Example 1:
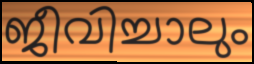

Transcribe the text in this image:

ജീവിച്ചാലും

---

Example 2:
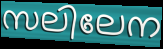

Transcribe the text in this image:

സലിലേന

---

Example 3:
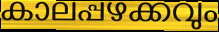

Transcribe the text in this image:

കാലപ്പഴക്കവും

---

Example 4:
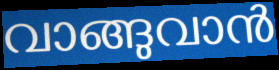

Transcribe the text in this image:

വാങ്ങുവാൻ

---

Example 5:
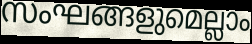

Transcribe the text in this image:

സംഘങ്ങളുമെല്ലാം